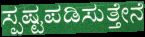
ಸ್ಪಷ್ಟಪಡಿಸುತ್ತೇನೆ